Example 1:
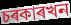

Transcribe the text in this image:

চৰকাৰখন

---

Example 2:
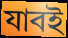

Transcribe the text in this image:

যাবই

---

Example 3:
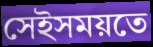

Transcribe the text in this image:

সেইসময়তে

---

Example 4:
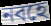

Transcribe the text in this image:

নবহে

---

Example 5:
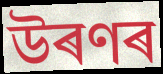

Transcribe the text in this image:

উৰণৰ